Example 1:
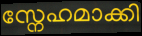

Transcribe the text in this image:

സ്നേഹമാക്കി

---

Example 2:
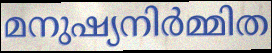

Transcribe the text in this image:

മനുഷ്യനിർമ്മിത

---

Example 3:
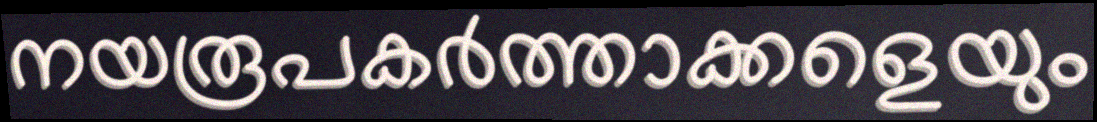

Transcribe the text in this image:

നയരൂപകർത്താക്കളെയും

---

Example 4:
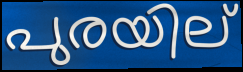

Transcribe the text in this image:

പുരയില്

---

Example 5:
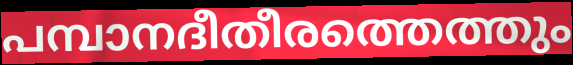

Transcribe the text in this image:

പമ്പാനദീതീരത്തെത്തും